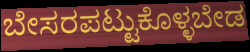
ಬೇಸರಪಟ್ಟುಕೊಳ್ಳಬೇಡ